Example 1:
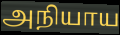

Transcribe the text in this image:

அநியாய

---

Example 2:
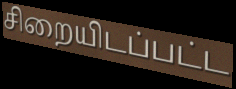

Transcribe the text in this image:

சிறையிடப்பட்ட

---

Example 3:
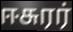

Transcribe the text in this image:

ஈசுரர்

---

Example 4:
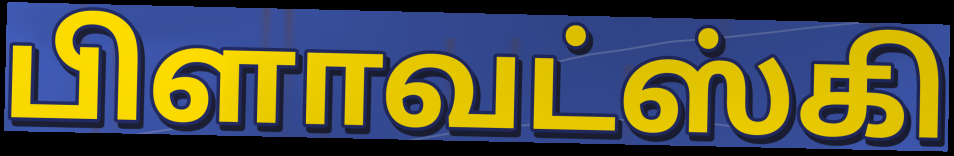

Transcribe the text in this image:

பிளாவட்ஸ்கி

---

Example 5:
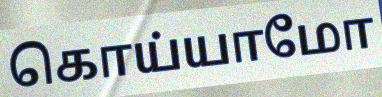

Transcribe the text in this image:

கொய்யாமோ